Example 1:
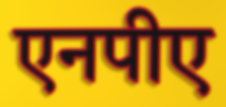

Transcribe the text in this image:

एनपीए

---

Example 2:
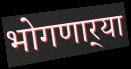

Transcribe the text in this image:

भोगणार्या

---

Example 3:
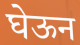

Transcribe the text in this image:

घेऊन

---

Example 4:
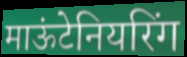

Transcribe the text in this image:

माऊंटेनियरिंग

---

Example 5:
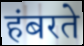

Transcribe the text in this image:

हंबरते